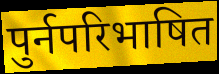
पुर्नपरिभाषित